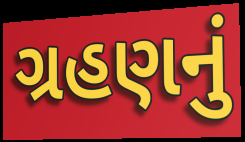
ગ્રહણનું